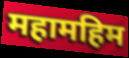
महामहिम